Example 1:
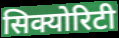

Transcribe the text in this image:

सिक्योरिटी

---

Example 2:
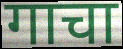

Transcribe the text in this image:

गाचा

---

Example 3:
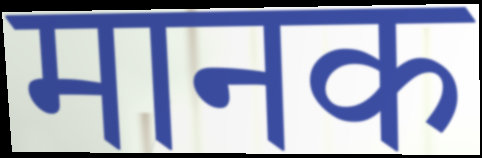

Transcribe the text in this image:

मानक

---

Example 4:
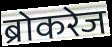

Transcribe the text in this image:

ब्रोकरेज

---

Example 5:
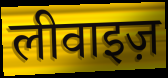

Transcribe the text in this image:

लीवाइज़